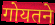
गोयतने